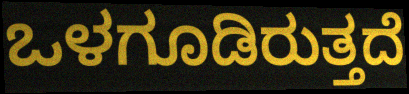
ಒಳಗೂಡಿರುತ್ತದೆ